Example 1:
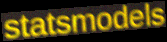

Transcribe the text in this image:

statsmodels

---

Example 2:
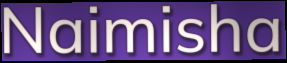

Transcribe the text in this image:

Naimisha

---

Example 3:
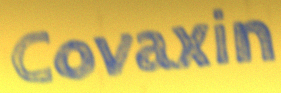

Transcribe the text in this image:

Covaxin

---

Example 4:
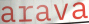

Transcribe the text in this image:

arava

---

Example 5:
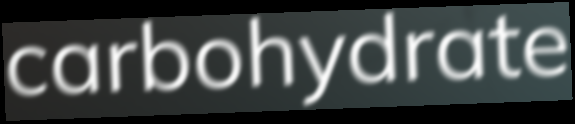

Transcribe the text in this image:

carbohydrate